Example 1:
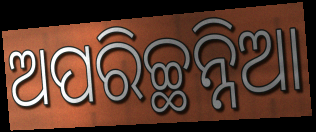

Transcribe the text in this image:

ଅପରିଚ୍ଛନ୍ନିଆ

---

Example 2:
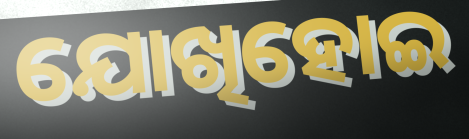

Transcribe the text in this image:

ଯୋଖିହୋଇ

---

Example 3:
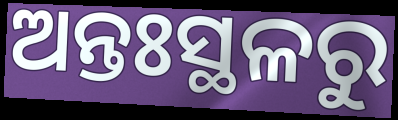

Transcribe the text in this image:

ଅନ୍ତଃସ୍ଥଳରୁ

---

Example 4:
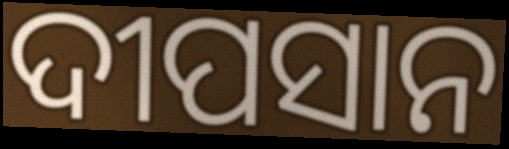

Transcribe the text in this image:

ଦୀପସାନ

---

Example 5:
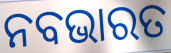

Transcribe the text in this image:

ନବଭାରତ